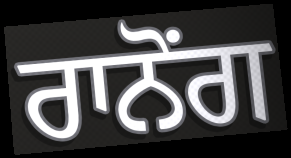
ਰਾਨੋਂਗ